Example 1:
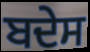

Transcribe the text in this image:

ਬਦੇਸ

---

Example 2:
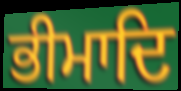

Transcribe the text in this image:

ਭੀਮਾਦਿ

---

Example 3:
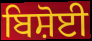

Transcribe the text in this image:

ਬਿਸ਼ੋਈ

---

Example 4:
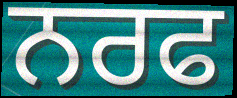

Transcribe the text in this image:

ਨਰਫ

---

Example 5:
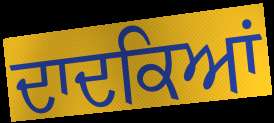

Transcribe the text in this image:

ਦਾਦਕਿਆਂ